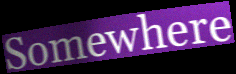
Somewhere